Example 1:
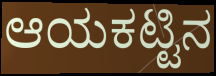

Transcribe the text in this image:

ಆಯಕಟ್ಟಿನ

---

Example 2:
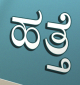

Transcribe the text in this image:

ಹತ್ತೆ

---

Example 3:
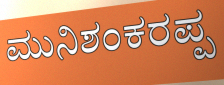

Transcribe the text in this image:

ಮುನಿಶಂಕರಪ್ಪ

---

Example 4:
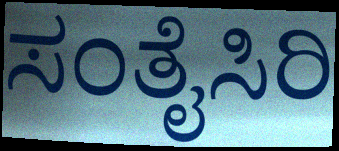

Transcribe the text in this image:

ಸಂತೈಸಿರಿ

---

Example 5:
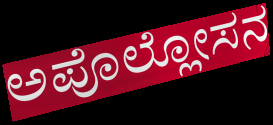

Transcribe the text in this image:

ಅಪೊಲ್ಲೋಸನ